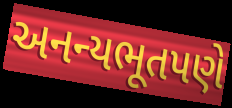
અનન્યભૂતપણે